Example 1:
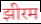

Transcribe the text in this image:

झीरम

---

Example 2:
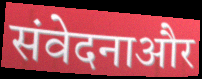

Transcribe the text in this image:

संवेदनाऔर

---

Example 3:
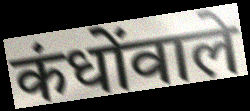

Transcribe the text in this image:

कंधोंवाले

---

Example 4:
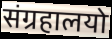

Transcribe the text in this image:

संग्रहालयो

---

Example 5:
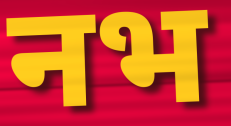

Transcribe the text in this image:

नभ